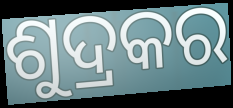
ଶୁଦ୍ରକର